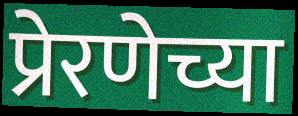
प्रेरणेच्या